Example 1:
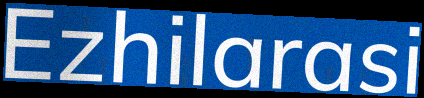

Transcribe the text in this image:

Ezhilarasi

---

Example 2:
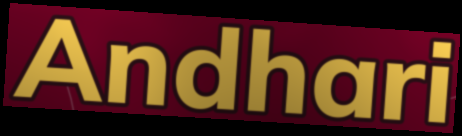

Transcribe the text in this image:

Andhari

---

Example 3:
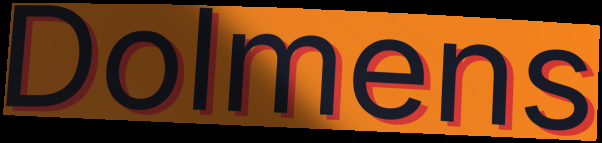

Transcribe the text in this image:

Dolmens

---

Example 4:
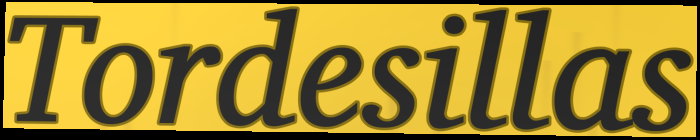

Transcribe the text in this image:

Tordesillas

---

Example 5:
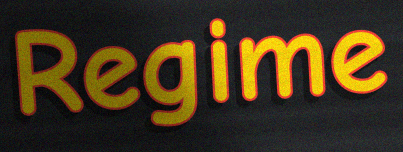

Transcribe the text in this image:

Regime